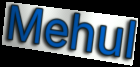
Mehul